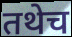
तथेच